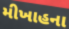
મીખાહના